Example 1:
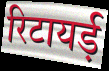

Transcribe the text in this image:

रिटायर्ड़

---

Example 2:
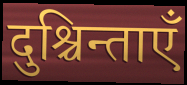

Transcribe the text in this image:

दुश्चिन्ताएँ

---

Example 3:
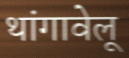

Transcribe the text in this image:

थांगावेलू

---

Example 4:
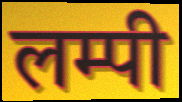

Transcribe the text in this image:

लम्पी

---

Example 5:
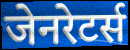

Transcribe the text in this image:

जेनरेटर्स